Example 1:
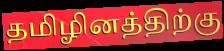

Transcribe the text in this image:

தமிழினத்திற்கு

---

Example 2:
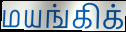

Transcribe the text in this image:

மயங்கிக்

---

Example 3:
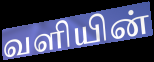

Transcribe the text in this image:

வளியின்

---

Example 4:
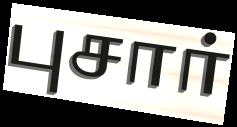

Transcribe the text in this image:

புசார்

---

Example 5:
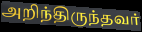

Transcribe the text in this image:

அறிந்திருந்தவர்